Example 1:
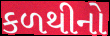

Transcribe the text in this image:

કળથીનો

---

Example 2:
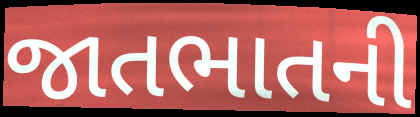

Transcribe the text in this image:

જાતભાતની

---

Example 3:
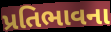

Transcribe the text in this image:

પ્રતિભાવના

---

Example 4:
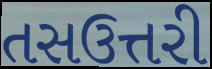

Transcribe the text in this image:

તસઉત્તરી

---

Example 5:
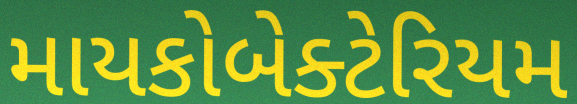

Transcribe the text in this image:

માયકોબેક્ટેરિયમ